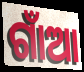
ଗାଁଆ